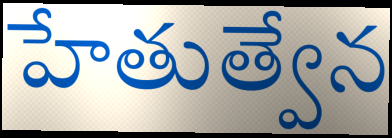
హేతుత్వేన